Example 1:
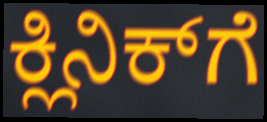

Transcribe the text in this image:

ಕ್ಲಿನಿಕ್‍ಗೆ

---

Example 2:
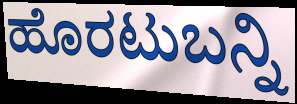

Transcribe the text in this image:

ಹೊರಟುಬನ್ನಿ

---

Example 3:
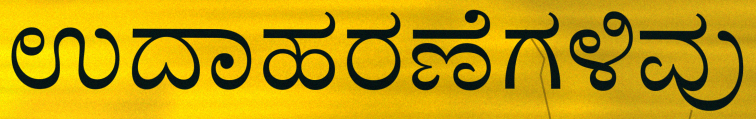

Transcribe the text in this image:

ಉದಾಹರಣೆಗಳಿವು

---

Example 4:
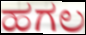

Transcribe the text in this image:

ಹಗಲ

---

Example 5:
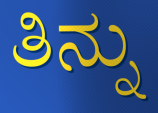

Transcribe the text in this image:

ತಿನ್ನು